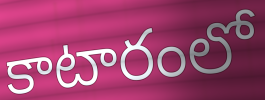
కాటారంలో